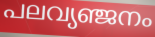
പലവ്യഞ്ജനം